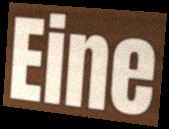
Eine